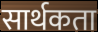
सार्थकता